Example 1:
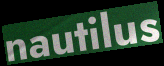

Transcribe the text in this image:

nautilus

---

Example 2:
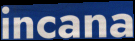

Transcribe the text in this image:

incana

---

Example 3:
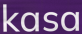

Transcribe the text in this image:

kasa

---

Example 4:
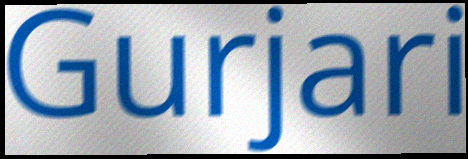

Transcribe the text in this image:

Gurjari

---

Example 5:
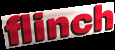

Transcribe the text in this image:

flinch